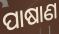
ପାଷାଣ